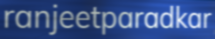
ranjeetparadkar